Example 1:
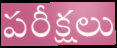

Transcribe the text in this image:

పరీక్షలు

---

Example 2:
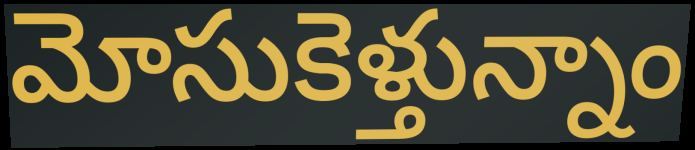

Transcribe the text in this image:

మోసుకెళ్తున్నాం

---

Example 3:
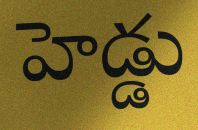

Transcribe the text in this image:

హెడ్డు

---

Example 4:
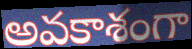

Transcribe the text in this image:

అవకాశంగా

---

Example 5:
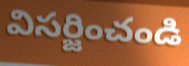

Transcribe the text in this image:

విసర్జించండి